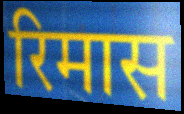
रिमास